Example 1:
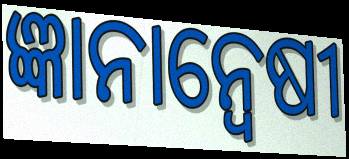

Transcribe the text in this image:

ଜ୍ଞାନାନ୍ୱେଷୀ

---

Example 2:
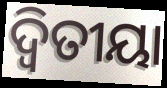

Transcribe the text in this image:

ଦ୍ଵିତୀୟା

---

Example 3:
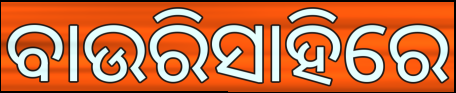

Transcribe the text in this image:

ବାଉରିସାହିରେ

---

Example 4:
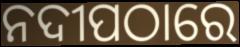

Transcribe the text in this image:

ନଦୀପଠାରେ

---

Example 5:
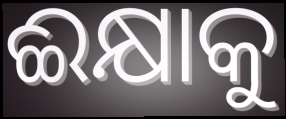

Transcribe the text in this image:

ଈକ୍ଷାକୁ